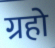
ग्रहो